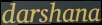
darshana